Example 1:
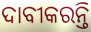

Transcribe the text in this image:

ଦାବୀକରନ୍ତି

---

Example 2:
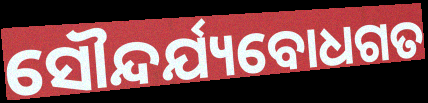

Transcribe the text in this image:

ସୌନ୍ଦର୍ଯ୍ୟବୋଧଗତ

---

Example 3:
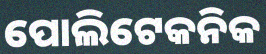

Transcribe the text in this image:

ପୋଲିଟେକନିକ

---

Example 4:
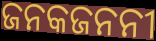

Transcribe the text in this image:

ଜନକଜନନୀ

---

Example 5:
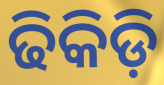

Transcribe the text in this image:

ଢିକିଡ଼ି